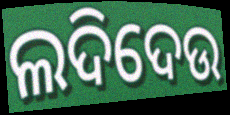
ଲଦିଦେଉ